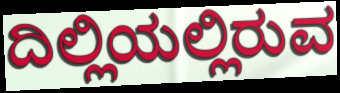
ದಿಲ್ಲಿಯಲ್ಲಿರುವ